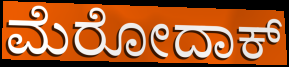
ಮೆರೋದಾಕ್